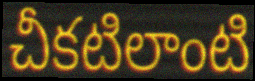
చీకటిలాంటి